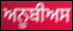
ਅਨੂਬੀਅਸ